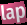
lap